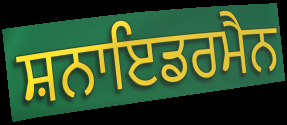
ਸ਼ਨਾਇਡਰਮੈਨ